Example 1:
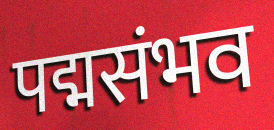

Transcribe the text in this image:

पद्मसंभव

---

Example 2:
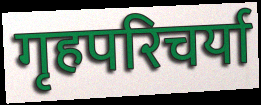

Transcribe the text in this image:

गृहपरिचर्या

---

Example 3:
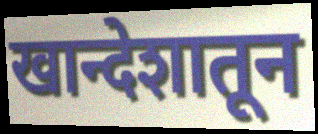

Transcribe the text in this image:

खान्देशातून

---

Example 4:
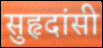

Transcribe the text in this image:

सुहृदांसी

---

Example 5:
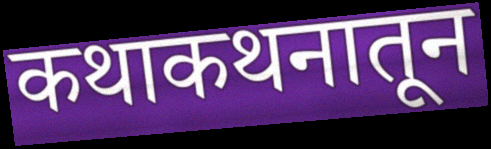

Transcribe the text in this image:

कथाकथनातून